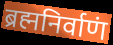
ब्रह्मनिर्वाणं